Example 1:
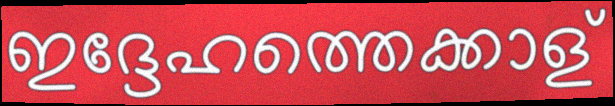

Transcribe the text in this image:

ഇദ്ദേഹത്തെക്കാള്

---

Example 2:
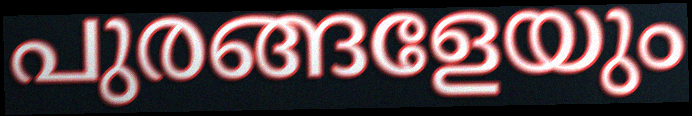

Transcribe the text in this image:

പുരങ്ങളേയും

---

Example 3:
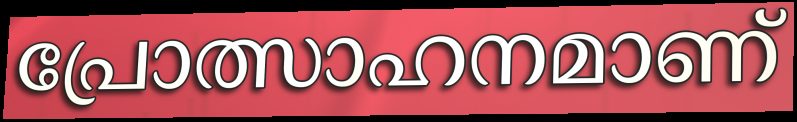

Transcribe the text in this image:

പ്രോത്സാഹനമാണ്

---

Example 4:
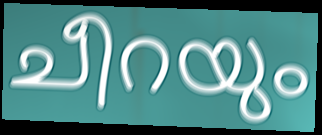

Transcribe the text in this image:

ചീറയും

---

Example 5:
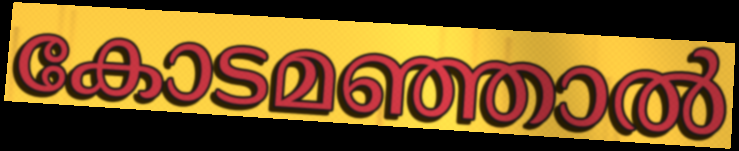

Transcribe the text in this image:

കോടമഞ്ഞാൽ